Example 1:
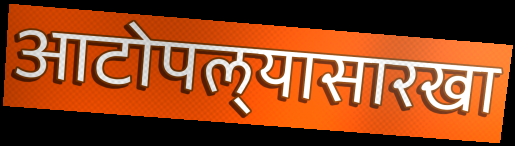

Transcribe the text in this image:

आटोपल्यासारखा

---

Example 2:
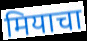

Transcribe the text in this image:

मियाचा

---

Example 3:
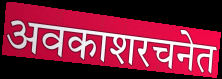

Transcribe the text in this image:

अवकाशरचनेत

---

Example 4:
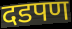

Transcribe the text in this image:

दडपण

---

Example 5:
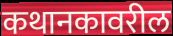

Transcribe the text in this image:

कथानकावरील